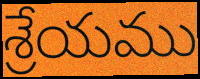
శ్రేయము